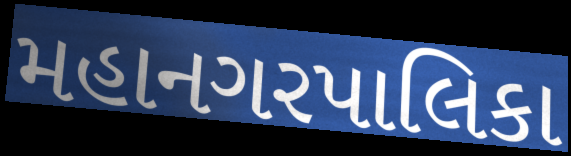
મહાનગરપાલિકા